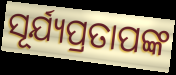
ସୂର୍ଯ୍ୟପ୍ରତାପଙ୍କ